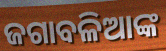
ଜଗାବଳିଆଙ୍କ